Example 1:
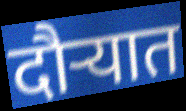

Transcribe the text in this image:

दौऱ्यात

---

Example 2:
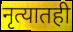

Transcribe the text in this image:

नृत्यातही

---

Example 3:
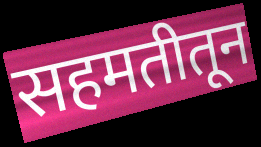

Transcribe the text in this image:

सहमतीतून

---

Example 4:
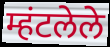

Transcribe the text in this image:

म्हंटलेले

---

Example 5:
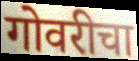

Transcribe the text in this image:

गोवरीचा